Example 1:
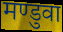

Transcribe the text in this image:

मण्डुवा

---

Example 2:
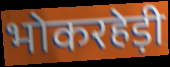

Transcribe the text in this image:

भोकरहेड़ी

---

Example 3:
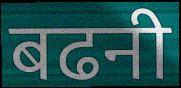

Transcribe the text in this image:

बढनी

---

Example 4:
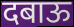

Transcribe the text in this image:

दबाऊ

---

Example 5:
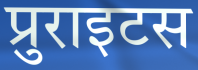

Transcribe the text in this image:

प्रुराइटस